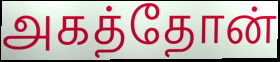
அகத்தோன்